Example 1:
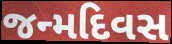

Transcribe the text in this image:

જન્મદિવસ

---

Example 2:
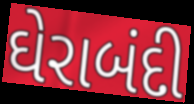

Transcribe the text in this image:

ઘેરાબંદી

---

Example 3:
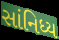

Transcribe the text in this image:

સાંનિધ્ય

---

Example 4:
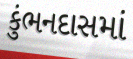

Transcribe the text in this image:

કુંભનદાસમાં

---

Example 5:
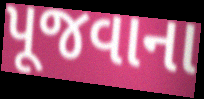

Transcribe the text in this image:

પૂજવાના